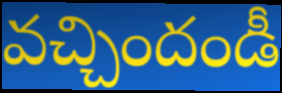
వచ్చిందండీ